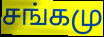
சங்கமு